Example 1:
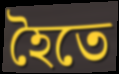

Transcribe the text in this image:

হৈতে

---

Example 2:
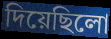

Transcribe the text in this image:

দিয়েছিলো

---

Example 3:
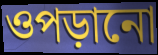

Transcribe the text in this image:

ওপড়ানো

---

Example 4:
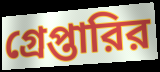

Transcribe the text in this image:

গ্রেপ্তারির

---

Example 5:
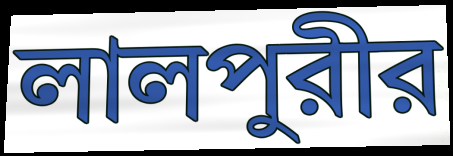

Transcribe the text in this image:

লালপুরীর